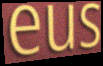
eus